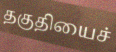
தகுதியைச்